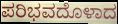
ಪರಿಭವದೊಳಾದ